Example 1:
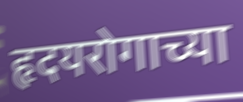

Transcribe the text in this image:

हृदयरोगाच्या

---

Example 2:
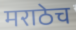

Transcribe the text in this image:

मराठेच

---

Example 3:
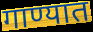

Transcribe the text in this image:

गाण्यात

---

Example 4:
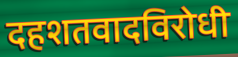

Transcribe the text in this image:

दहशतवादविरोधी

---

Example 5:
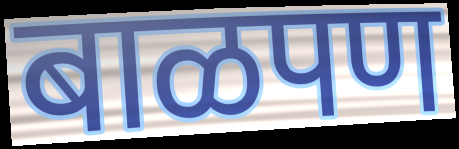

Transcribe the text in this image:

बाळपण